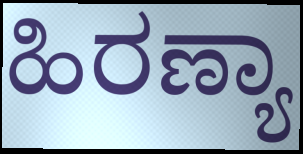
ಹಿರಣ್ಯಾ